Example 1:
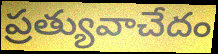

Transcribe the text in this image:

ప్రత్యువాచేదం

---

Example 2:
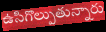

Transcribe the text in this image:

ఉసిగొల్పుతున్నారు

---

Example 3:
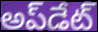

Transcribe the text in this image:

అప్‌డేట్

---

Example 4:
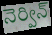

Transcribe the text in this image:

నెర్విన్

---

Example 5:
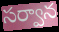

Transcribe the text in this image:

సర్వాన